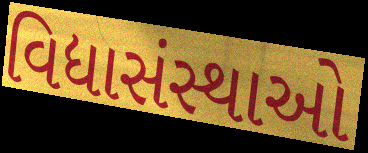
વિદ્યાસંસ્થાઓ